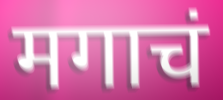
मगाचं